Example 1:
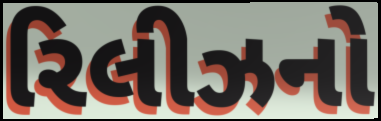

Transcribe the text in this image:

રિલીઝનો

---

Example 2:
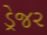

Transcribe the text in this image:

ડ્રેજર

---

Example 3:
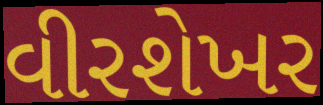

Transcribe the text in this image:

વીરશેખર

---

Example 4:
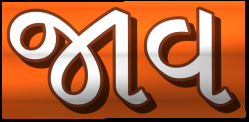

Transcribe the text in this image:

જાવ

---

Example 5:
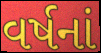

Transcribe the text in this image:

વર્ષનાં